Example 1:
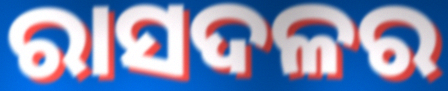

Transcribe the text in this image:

ରାସଦଳର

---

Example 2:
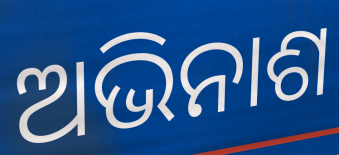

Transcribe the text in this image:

ଅଭିନାଶ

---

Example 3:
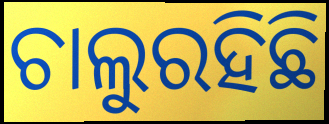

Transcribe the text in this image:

ଚାଲୁରହିଛି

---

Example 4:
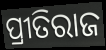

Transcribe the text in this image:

ପ୍ରୀତିରାଜ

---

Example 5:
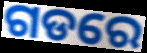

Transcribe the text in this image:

ଗଡରେ